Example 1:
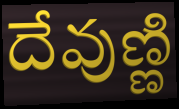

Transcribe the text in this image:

దేవుణ్ణి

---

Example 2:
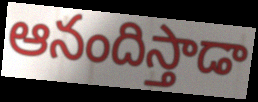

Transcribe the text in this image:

ఆనందిస్తాడా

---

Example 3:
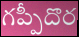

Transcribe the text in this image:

గప్పీదొర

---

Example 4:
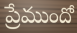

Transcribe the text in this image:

ప్రేముందో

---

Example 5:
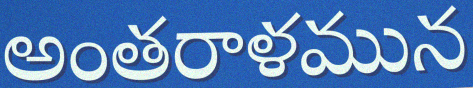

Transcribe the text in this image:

అంతరాళమున